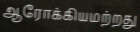
ஆரோக்கியமற்றது